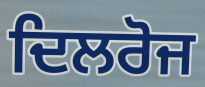
ਦਿਲਰੋਜ